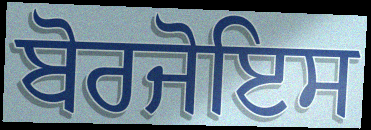
ਬੋਰਜੋਇਸ